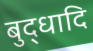
बुद्धादि